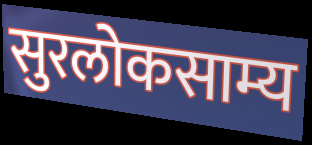
सुरलोकसाम्य